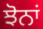
ਝੋਨਾਂ